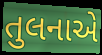
તુલનાએ